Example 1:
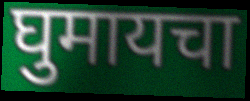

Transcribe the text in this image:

घुमायचा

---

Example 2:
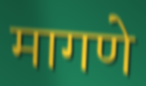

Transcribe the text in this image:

मागणे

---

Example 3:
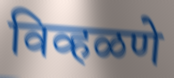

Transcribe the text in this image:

विव्हळणे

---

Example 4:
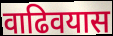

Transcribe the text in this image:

वाढिवयास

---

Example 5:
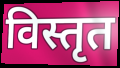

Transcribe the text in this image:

विस्तृत